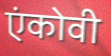
एंकोवी